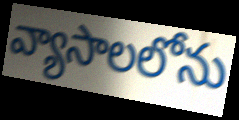
వ్యాసాలలోను